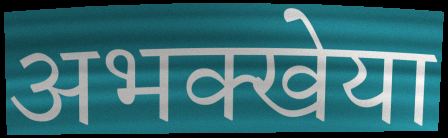
अभक्खेया